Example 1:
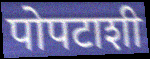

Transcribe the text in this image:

पोपटाशी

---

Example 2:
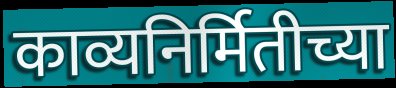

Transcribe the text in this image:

काव्यनिर्मितीच्या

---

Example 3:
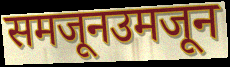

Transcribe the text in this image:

समजूनउमजून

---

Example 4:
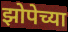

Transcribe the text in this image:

झोपेच्या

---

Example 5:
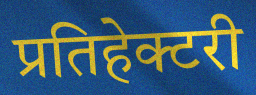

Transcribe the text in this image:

प्रतिहेक्टरी